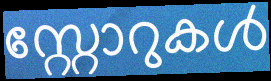
സ്റ്റോറുകൾ